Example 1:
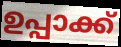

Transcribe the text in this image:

ഉപ്പാക്ക്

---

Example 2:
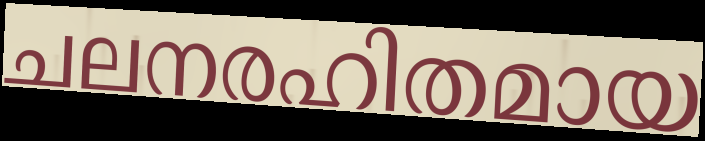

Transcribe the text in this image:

ചലനരഹിതമായ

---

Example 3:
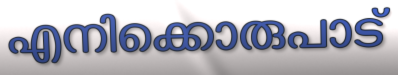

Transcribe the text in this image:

എനിക്കൊരുപാട്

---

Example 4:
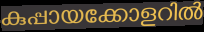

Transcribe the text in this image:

കുപ്പായക്കോളറിൽ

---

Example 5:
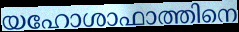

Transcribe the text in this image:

യഹോശാഫാത്തിനെ